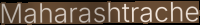
Maharashtrache